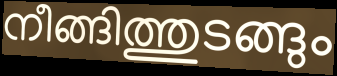
നീങ്ങിത്തുടങ്ങും